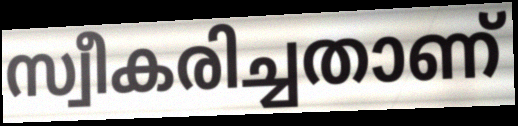
സ്വീകരിച്ചതാണ്